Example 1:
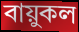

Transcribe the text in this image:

বায়ুকল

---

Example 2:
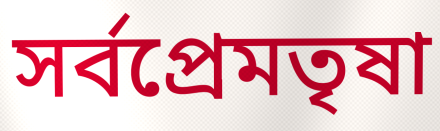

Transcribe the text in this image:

সর্বপ্রেমতৃষা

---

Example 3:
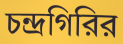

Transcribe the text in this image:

চন্দ্রগিরির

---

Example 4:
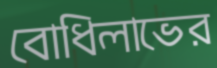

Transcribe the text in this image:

বোধিলাভের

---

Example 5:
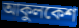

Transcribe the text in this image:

আকুলকেশ